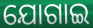
ଯୋଗାଇ